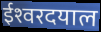
ईश्वरदयाल